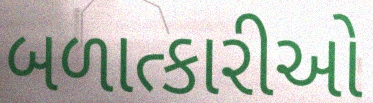
બળાત્કારીઓ